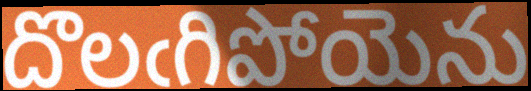
దొలఁగిపోయెను